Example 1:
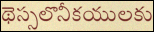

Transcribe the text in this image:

థెస్సలొనీకయులకు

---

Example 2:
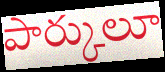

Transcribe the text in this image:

పార్కులూ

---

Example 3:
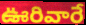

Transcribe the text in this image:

ఊరివారే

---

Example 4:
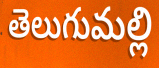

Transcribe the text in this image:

తెలుగుమల్లి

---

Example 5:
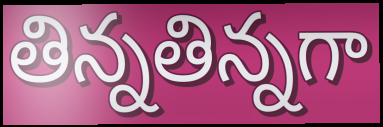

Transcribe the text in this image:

తిన్నతిన్నగా